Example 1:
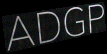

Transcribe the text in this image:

ADGP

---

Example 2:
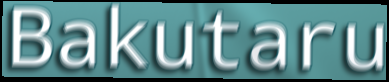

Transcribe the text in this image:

Bakutaru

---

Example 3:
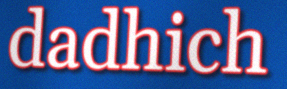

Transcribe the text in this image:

dadhich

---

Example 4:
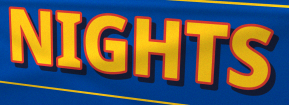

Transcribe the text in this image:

NIGHTS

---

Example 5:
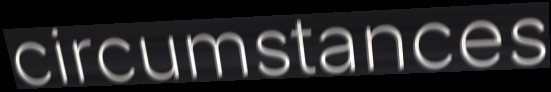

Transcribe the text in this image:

circumstances